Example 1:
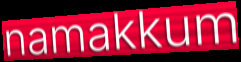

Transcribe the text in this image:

namakkum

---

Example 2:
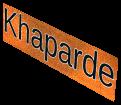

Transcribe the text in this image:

Khaparde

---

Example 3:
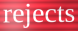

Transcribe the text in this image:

rejects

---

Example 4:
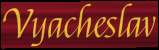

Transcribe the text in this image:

Vyacheslav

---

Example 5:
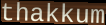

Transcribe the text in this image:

thakkum